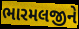
ભારમલજીને